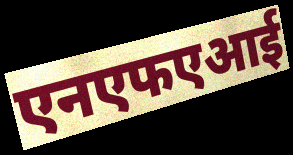
एनएफएआई